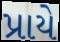
પ્રાયે